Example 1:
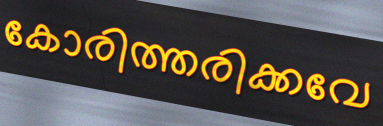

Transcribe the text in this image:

കോരിത്തരിക്കവേ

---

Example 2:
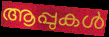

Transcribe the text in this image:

ആപ്പുകൾ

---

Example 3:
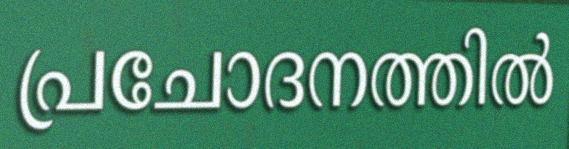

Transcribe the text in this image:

പ്രചോദനത്തിൽ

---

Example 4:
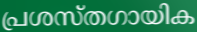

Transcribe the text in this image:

പ്രശസ്തഗായിക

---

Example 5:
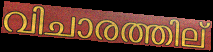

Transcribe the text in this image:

വിചാരത്തില്